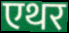
एथर